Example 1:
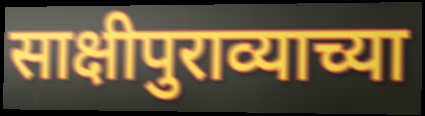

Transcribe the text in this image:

साक्षीपुराव्याच्या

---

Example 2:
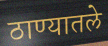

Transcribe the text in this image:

ठाण्यातले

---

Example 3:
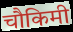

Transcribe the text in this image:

चौकिमी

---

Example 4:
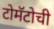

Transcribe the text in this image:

टोमॅटोची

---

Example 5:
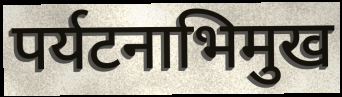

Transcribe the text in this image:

पर्यटनाभिमुख